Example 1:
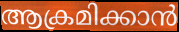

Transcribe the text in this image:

ആക്രമിക്കാൻ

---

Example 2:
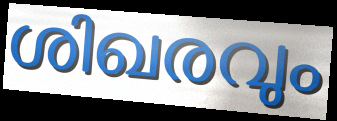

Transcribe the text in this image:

ശിഖരവും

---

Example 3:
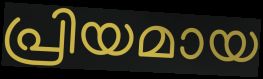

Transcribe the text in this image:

പ്രിയമായ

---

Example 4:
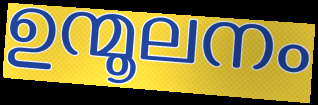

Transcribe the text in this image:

ഉന്മൂലനം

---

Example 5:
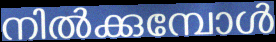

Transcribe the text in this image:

നിൽക്കുമ്പോൾ